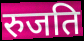
रुजति